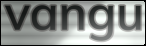
vangu